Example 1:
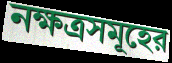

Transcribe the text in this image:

নক্ষত্রসমূহের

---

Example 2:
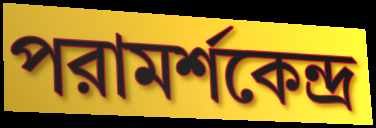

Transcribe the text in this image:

পরামর্শকেন্দ্র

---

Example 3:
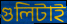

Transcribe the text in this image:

গুলিটাই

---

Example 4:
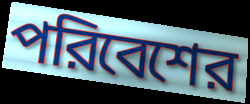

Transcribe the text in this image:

পরিবেশের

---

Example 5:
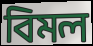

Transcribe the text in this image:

বিমল